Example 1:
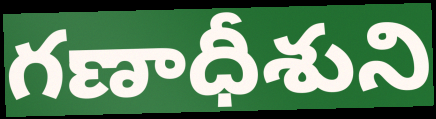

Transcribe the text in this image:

గణాధీశుని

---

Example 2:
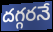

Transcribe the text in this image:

దగ్గరనే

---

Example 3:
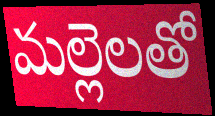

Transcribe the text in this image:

మల్లెలతో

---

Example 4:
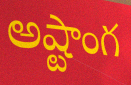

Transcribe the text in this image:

అష్టాంగ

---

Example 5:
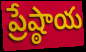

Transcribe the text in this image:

ప్రేష్ఠాయ